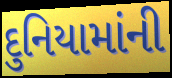
દુનિયામાંની